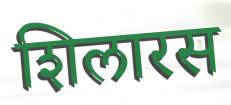
शिलारस